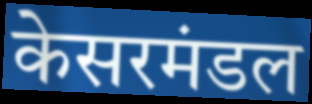
केसरमंडल